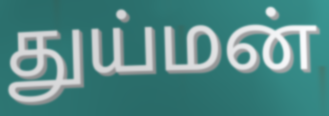
துய்மன்